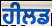
ਹੀਲਡ